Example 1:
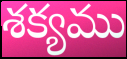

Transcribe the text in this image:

శక్యము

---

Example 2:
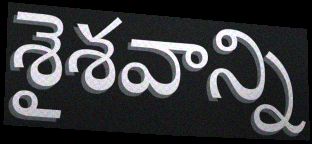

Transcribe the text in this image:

శైశవాన్ని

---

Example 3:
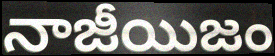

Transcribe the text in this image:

నాజీయిజం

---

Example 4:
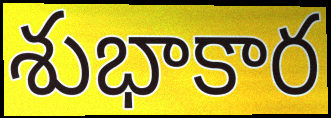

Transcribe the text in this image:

శుభాకార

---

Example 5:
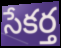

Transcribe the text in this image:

సేకర్త